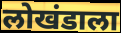
लोखंडाला